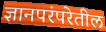
ज्ञानपरंपरेतील